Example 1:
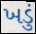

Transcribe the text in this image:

ખડું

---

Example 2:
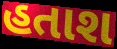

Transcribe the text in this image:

હતાશ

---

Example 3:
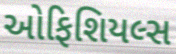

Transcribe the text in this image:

ઓફિશિયલ્સ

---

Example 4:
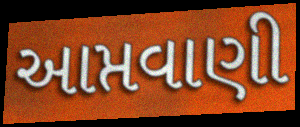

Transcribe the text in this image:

આપ્તવાણી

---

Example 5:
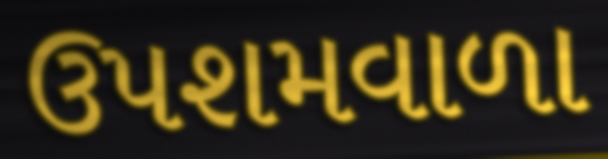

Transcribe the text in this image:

ઉપશમવાળા